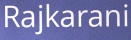
Rajkarani